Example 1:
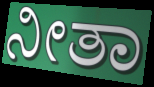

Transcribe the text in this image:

ನೀತಾ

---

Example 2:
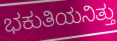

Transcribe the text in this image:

ಭಕುತಿಯನಿತ್ತು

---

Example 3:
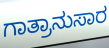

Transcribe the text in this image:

ಗಾತ್ರಾನುಸಾರ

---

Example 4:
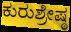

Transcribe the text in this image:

ಕುರುಶ್ರೇಷ್ಠ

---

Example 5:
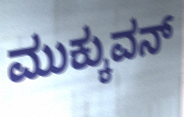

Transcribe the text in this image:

ಮುಕ್ಕುವನ್